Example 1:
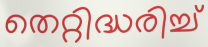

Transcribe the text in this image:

തെറ്റിദ്ധരിച്ച്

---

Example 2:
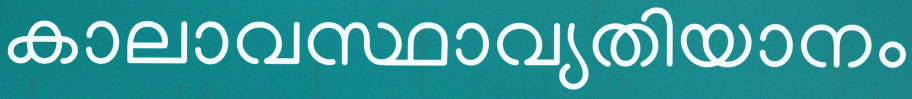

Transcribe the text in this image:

കാലാവസ്ഥാവ്യതിയാനം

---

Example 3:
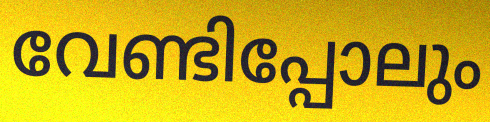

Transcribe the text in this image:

വേണ്ടിപ്പോലും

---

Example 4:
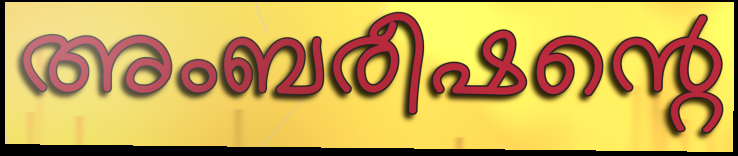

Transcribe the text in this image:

അംബരീഷന്റെ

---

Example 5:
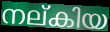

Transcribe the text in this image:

നല്‌കിയ